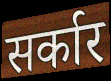
सर्कार